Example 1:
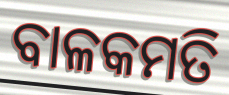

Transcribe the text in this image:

ବାଳକମତି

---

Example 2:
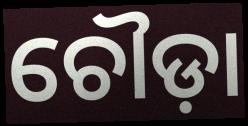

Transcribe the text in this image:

ଚୌଡ଼ା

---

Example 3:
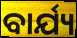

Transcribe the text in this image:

ବାର୍ଯ୍ୟ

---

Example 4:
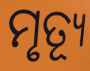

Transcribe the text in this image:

ମୃତ୍ୟୂ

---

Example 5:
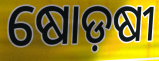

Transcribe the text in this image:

ଷୋଡ଼ଷୀ